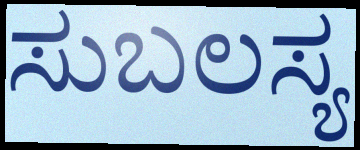
ಸುಬಲಸ್ಯ